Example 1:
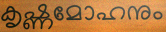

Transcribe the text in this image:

കൃഷ്ണമോഹനും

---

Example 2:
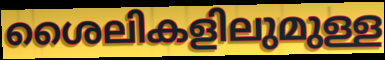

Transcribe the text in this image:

ശൈലികളിലുമുള്ള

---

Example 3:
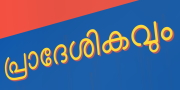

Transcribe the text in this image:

പ്രാദേശികവും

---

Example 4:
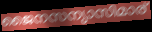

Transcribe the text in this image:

ജൈനസന്യാസിമാര്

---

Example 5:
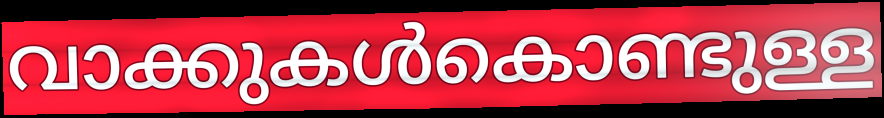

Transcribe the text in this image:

വാക്കുകൾകൊണ്ടുള്ള